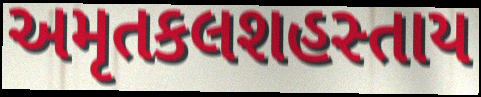
અમૃતકલશહસ્તાય